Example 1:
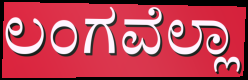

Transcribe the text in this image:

ಲಂಗವೆಲ್ಲಾ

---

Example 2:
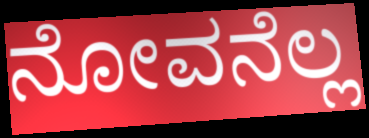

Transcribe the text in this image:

ನೋವನೆಲ್ಲ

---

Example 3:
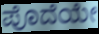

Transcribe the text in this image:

ಪೊದೆಯೇ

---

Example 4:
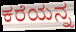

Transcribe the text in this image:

ಕರೆಯನ್ನ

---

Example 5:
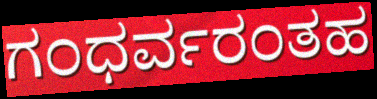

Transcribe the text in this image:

ಗಂಧರ್ವರಂತಹ